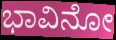
ಭಾವಿನೋ